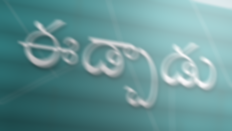
ఈడ్చాడు